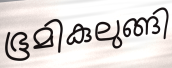
ഭൂമികുലുങ്ങി